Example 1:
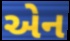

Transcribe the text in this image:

એન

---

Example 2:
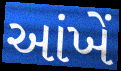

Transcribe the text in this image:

આંખેં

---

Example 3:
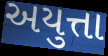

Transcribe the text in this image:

અયુત્તા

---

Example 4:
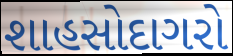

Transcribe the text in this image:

શાહસોદાગરો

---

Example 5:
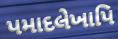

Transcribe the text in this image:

પમાદલેખાપિ